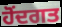
ਹੋਂਦਗਤ